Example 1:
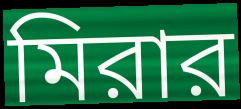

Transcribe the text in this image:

মিরার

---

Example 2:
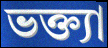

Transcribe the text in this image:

ভক্ত্যা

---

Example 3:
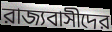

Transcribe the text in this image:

রাজ্যবাসীদের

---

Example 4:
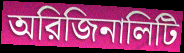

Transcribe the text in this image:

অরিজিনালিটি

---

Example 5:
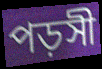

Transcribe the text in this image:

পড়সী